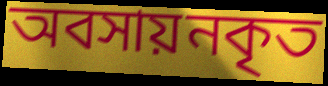
অবসায়নকৃত